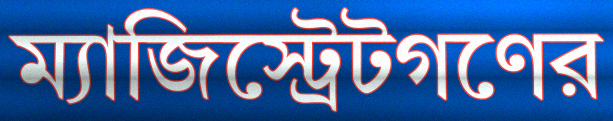
ম্যাজিস্ট্রেটগণের